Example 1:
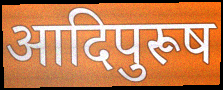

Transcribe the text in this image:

आदिपुरूष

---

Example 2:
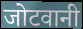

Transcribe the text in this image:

जोटवानी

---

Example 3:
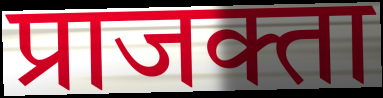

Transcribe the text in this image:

प्राजक्ता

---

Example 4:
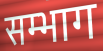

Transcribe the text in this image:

सम्भाग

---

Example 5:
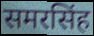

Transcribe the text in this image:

समरसिंह